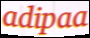
adipaa